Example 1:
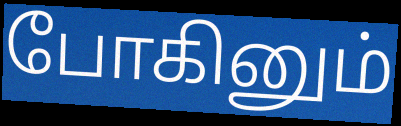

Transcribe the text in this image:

போகினும்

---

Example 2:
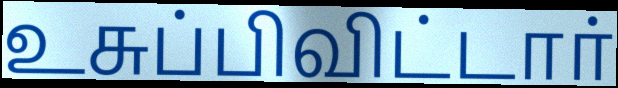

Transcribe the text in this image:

உசுப்பிவிட்டார்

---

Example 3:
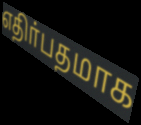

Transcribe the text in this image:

எதிர்பதமாக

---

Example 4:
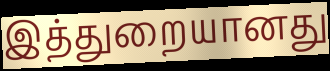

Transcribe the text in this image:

இத்துறையானது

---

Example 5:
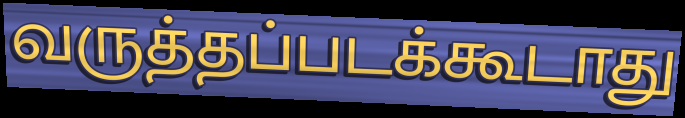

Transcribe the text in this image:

வருத்தப்படக்கூடாது